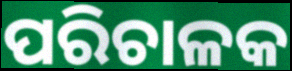
ପରିଚାଳକ